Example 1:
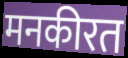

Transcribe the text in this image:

मनकीरत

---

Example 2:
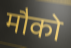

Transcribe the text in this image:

मौको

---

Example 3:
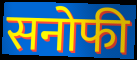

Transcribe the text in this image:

सनोफी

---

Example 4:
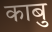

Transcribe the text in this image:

काबु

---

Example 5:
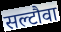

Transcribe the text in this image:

सल्टौवा